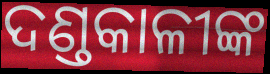
ଦଣ୍ଡକାଳୀଙ୍କ